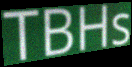
TBHs